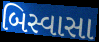
બિસ્વાસા